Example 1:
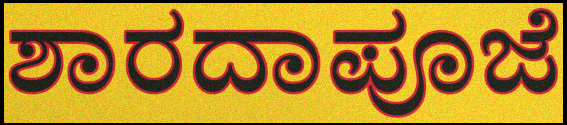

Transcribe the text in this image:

ಶಾರದಾಪೂಜೆ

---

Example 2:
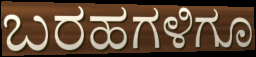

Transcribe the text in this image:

ಬರಹಗಳಿಗೂ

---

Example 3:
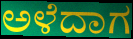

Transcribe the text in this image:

ಅಳೆದಾಗ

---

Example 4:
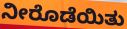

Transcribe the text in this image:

ನೀರೊಡೆಯಿತು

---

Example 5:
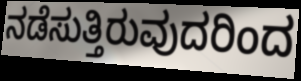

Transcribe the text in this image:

ನಡೆಸುತ್ತಿರುವುದರಿಂದ